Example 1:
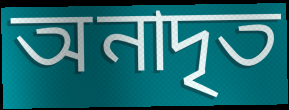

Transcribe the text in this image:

অনাদৃত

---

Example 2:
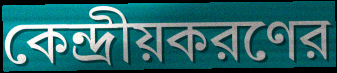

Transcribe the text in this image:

কেন্দ্রীয়করণের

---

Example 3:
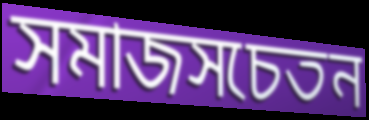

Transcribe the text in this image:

সমাজসচেতন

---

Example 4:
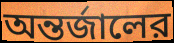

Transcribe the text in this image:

অন্তর্জালের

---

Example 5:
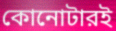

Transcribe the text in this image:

কোনোটারই